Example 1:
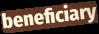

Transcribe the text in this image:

beneficiary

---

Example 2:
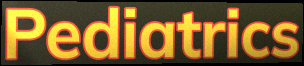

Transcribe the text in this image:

Pediatrics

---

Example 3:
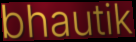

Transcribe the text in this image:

bhautik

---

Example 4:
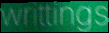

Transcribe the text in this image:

writtings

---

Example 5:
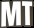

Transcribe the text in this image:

MT